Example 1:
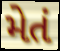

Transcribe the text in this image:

મેતં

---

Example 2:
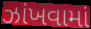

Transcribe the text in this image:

ઝાંખવામાં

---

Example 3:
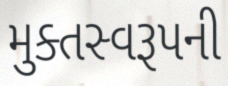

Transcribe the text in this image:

મુક્તસ્વરૂપની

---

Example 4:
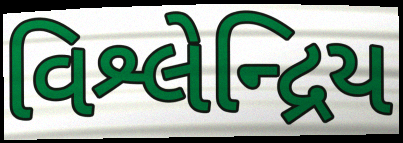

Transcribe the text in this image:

વિશ્લેન્દ્રિય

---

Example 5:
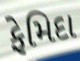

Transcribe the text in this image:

ફેમિદા